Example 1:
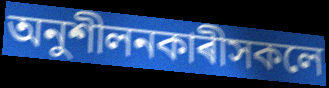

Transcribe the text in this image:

অনুশীলনকাৰীসকলে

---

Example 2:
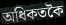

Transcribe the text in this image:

অধিকতকৈ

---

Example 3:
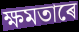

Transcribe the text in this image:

ক্ষমতাৰে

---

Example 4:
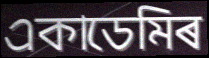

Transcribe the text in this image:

একাডেমিৰ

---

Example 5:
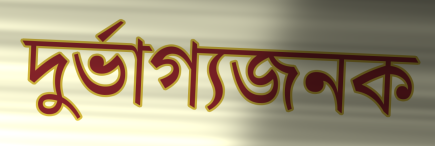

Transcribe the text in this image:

দুৰ্ভাগ্যজনক